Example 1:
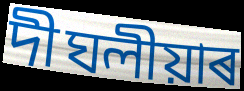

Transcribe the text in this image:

দীঘলীয়াৰ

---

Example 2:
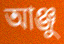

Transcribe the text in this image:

আঞ্জু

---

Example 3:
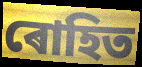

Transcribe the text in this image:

ৰোহিত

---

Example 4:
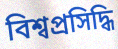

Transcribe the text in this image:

বিশ্বপ্ৰসিদ্ধি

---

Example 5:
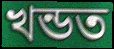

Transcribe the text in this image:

খন্ডত